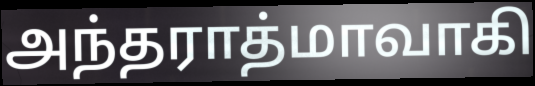
அந்தராத்மாவாகி